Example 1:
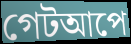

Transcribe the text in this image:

গেটআপে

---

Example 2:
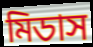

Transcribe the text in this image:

মিডাস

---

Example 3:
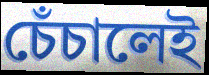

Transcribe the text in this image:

চেঁচালেই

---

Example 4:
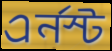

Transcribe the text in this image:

এর্নস্ট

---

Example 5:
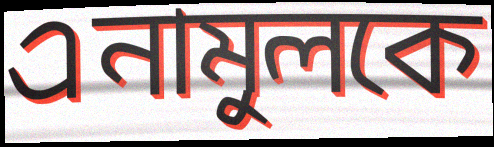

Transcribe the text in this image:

এনামুলকে